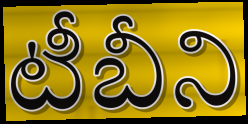
టీబీని